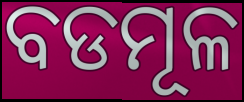
ବଡମୂଳ